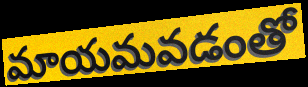
మాయమవడంతో